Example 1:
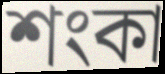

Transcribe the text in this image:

শংকা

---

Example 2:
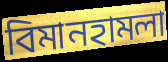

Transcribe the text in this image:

বিমানহামলা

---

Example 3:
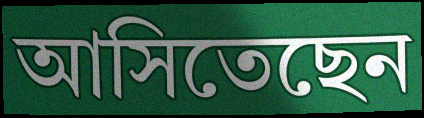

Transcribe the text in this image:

আসিতেছেন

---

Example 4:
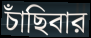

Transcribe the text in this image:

চাঁছিবার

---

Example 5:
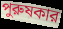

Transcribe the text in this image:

পুরুষকার